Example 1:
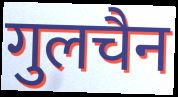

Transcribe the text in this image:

गुलचैन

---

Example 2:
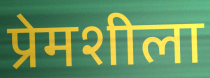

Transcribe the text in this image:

प्रेमशीला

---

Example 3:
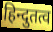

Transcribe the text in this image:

हिन्दुतत्व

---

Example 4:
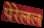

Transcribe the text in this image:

पेरेलल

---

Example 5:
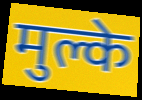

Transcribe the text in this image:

मुल्के